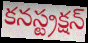
కనస్ట్రక్షన్